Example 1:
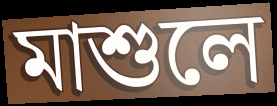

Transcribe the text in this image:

মাশুলে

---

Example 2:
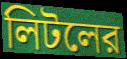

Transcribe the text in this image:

লিটলের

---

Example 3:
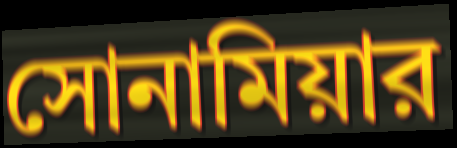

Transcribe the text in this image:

সোনামিয়ার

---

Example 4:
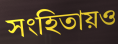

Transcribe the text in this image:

সংহিতায়ও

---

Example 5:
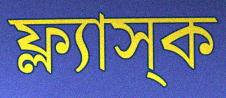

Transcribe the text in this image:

ফ্ল্যাস্‌ক